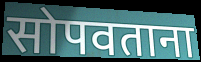
सोपवताना